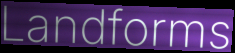
Landforms